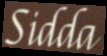
Sidda